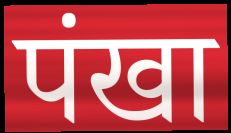
पंखा